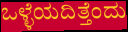
ಒಳ್ಳೆಯದಿತ್ತೆಂದು